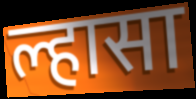
ल्हासा